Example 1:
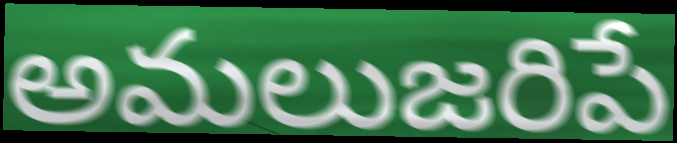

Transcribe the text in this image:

అమలుజరిపే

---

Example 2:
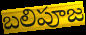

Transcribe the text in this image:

బలిపూజ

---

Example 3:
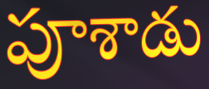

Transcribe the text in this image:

పూశాడు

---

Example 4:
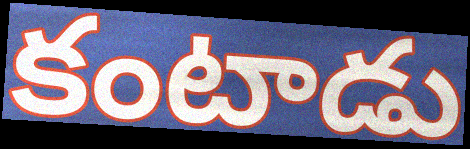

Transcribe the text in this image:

కంటాడు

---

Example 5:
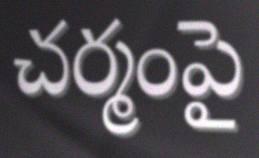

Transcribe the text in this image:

చర్మంపై